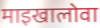
माइखालोवा